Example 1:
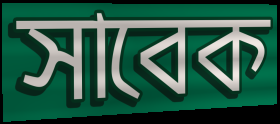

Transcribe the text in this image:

সাবেক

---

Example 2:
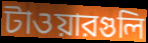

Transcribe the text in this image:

টাওয়ারগুলি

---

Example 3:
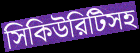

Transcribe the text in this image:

সিকিউরিটিসহ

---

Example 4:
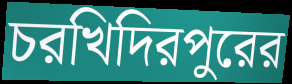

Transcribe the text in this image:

চরখিদিরপুরের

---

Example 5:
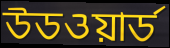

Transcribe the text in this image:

উডওয়ার্ড